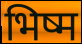
भिष्म